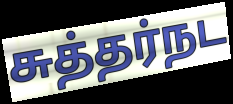
சுத்தர்நட